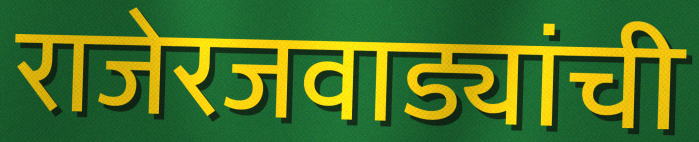
राजेरजवाड्यांची